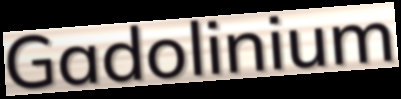
Gadolinium